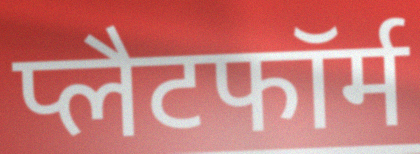
प्लैटफॉर्म